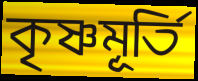
কৃষ্ণমূর্তি